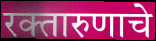
रक्तारुणाचे